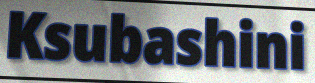
Ksubashini